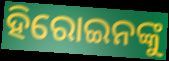
ହିରୋଇନଙ୍କୁ